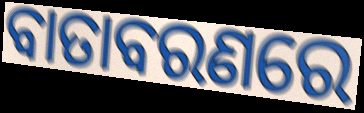
ବାତାବରଣରେ